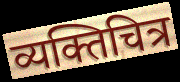
व्यक्तिचित्र